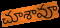
చూశావూ